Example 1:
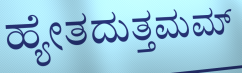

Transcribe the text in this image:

ಹ್ಯೇತದುತ್ತಮಮ್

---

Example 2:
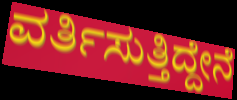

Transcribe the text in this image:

ವರ್ತಿಸುತ್ತಿದ್ದೇನೆ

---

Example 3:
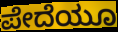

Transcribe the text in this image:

ಪೇದೆಯೂ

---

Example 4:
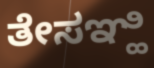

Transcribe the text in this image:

ತೇಸಞ್ಹಿ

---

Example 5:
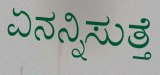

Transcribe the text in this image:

ಏನನ್ನಿಸುತ್ತೆ